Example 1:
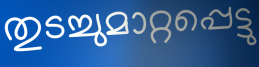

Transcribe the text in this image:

തുടച്ചുമാറ്റപ്പെട്ടു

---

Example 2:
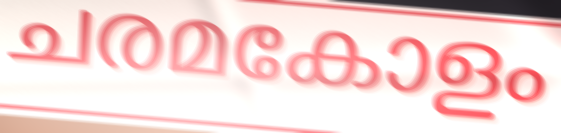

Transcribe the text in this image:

ചരമകോളം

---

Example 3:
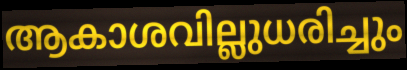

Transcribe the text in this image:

ആകാശവില്ലുധരിച്ചും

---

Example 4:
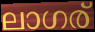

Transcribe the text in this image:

ലാഗര്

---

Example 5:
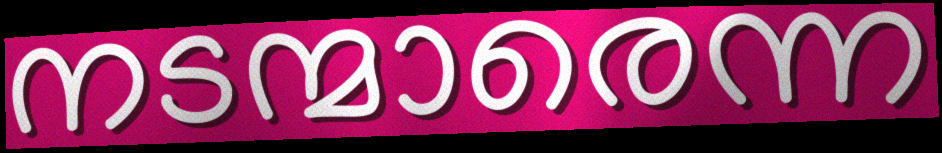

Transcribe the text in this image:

നടന്മാരെന്ന